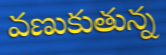
వణుకుతున్న